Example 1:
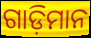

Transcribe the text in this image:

ଗାଡ଼ିମାନ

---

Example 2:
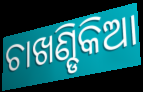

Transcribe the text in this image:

ଚାଖଣ୍ଡିକିଆ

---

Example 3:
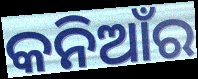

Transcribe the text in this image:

କନିଆଁର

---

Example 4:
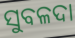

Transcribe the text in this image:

ସୁବଳଦା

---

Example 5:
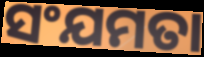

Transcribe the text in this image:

ସଂଯମତା